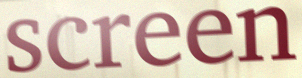
screen